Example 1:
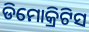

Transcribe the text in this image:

ଡିମୋକ୍ରିଟିସ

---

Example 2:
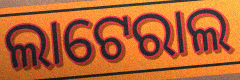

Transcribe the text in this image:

ଲାଟେରାଲ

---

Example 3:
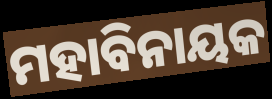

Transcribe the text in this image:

ମହାବିନାୟକ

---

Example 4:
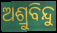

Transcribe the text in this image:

ଅଶ୍ରୁବିନ୍ଦୁ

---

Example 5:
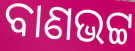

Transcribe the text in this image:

ବାଣଭଟ୍ଟ